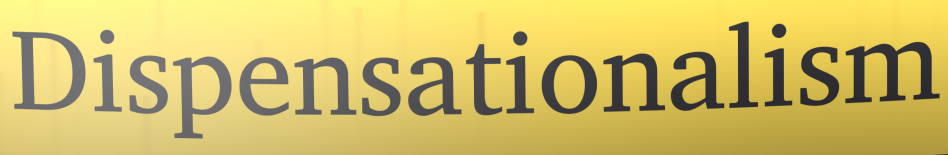
Dispensationalism